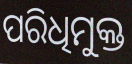
ପରିଧିମୁକ୍ତ